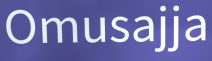
Omusajja